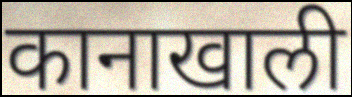
कानाखाली